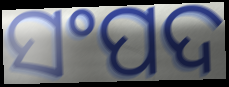
ସଂପଦ